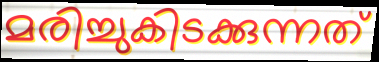
മരിച്ചുകിടക്കുന്നത്